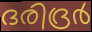
ദരിദ്രർ